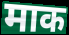
माक